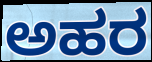
ಅಹರ